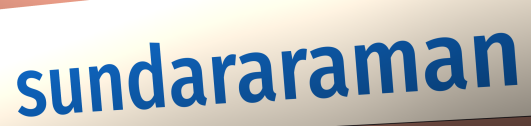
sundararaman